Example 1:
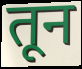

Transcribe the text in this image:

तून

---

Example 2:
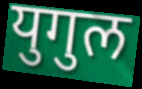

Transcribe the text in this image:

युगुल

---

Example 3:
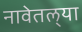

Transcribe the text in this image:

नावेतल्या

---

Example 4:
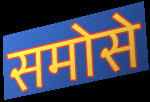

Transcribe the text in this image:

समोसे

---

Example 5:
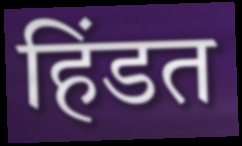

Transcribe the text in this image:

हिंडत